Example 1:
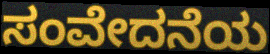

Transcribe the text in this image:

ಸಂವೇದನೆಯ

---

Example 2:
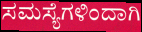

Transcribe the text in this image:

ಸಮಸ್ಯೆಗಳಿಂದಾಗಿ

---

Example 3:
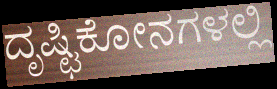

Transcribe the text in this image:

ದೃಷ್ಟಿಕೋನಗಳಲ್ಲಿ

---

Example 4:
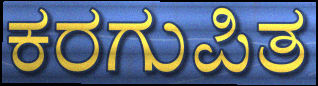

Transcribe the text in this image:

ಕರಗುಪಿತ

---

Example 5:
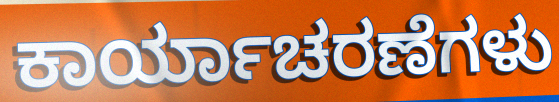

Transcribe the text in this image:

ಕಾರ್ಯಾಚರಣೆಗಳು